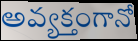
అవ్యక్తంగానో